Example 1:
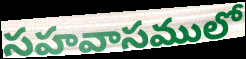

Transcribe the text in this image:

సహవాసములో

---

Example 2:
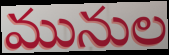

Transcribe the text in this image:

మునుల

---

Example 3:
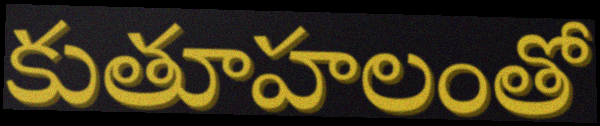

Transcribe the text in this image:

కుతూహలంతో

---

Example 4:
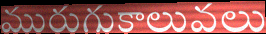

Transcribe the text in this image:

మురుగుకాలువలు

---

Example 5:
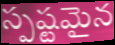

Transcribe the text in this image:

స్పష్టమైన